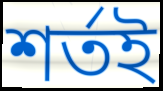
শর্তই